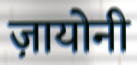
ज़ायोनी